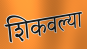
शिकवल्या